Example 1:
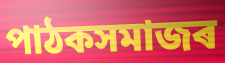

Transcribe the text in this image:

পাঠকসমাজৰ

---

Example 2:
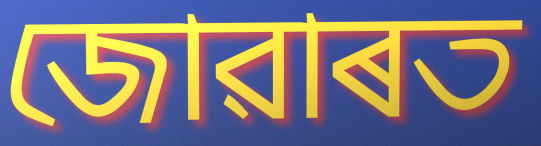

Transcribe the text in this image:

জোৱাৰত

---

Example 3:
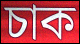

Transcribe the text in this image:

চাক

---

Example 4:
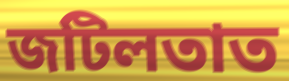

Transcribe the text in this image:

জটিলতাত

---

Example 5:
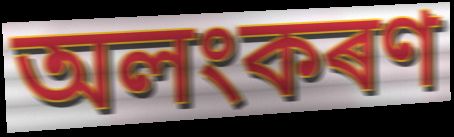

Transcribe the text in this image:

অলংকৰণ